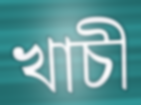
খাচী